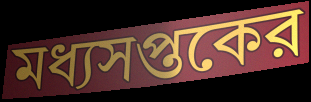
মধ্যসপ্তকের